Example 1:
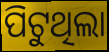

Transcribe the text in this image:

ପିଟୁଥିଲା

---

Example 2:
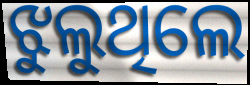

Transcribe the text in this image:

ଝୁଲୁଥିଲେ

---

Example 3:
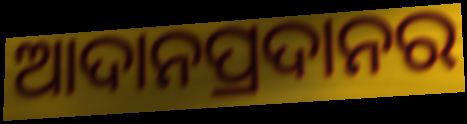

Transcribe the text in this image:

ଆଦାନପ୍ରଦାନର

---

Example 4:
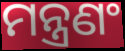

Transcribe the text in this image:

ମନ୍ତ୍ରଣଂ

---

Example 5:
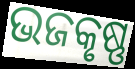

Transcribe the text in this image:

ଭଜକୃଷ୍ଣ